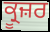
ਕ੍ਰੂਜ਼ਰ